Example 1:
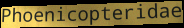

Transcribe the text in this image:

Phoenicopteridae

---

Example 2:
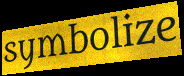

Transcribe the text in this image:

symbolize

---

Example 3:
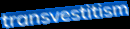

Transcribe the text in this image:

transvestitism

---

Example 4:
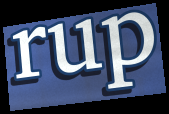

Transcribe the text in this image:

rup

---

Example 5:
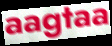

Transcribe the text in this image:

aagtaa